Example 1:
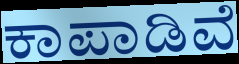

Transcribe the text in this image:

ಕಾಪಾಡಿವೆ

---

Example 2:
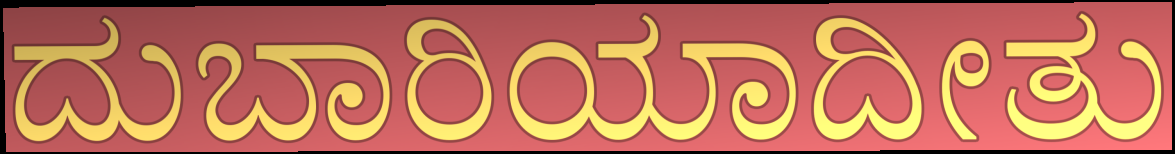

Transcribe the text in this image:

ದುಬಾರಿಯಾದೀತು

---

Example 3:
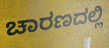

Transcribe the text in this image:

ಚಾರಣದಲ್ಲಿ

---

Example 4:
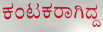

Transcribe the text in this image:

ಕಂಟಕರಾಗಿದ್ದ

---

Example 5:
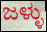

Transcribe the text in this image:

ಜಳ್ಳು